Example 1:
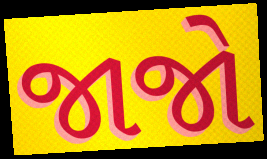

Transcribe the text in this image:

જાજો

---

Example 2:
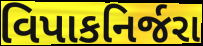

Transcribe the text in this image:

વિપાકનિર્જરા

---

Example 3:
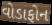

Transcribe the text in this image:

વોડાફોન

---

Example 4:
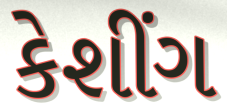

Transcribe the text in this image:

કેશીંગ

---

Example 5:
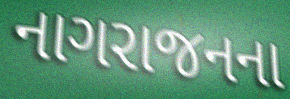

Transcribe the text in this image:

નાગરાજનના